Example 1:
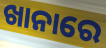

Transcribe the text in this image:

ଖାନାରେ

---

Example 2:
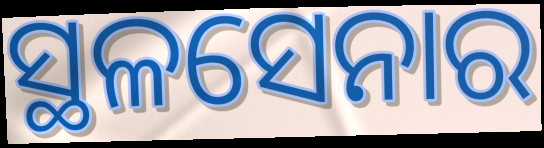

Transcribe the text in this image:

ସ୍ଥଳସେନାର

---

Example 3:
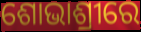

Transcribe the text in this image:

ଶୋଭାଶ୍ରୀରେ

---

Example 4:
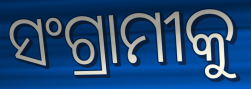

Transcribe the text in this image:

ସଂଗ୍ରାମୀକୁ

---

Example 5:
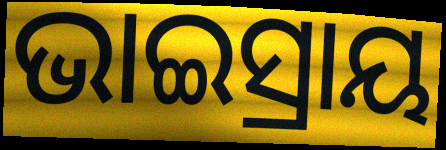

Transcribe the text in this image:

ଭାଇସ୍ରାୟ